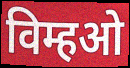
विम्हओ